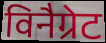
विनैग्रेट